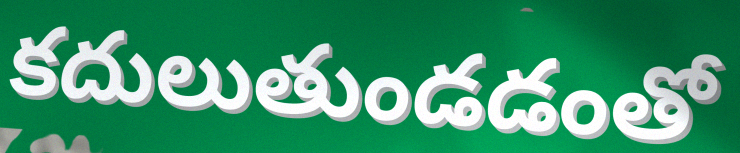
కదులుతుండడంతో